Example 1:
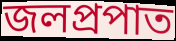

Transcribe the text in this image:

জলপ্রপাত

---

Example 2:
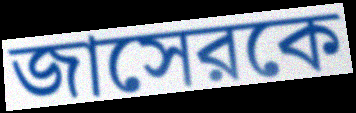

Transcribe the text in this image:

জাসেরকে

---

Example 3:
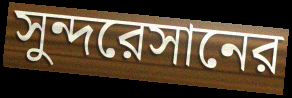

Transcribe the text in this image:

সুন্দরেসানের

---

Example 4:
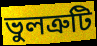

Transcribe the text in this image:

ভুলত্রুটি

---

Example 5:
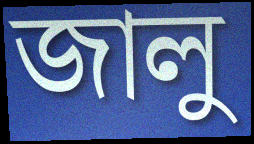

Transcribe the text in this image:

জালু